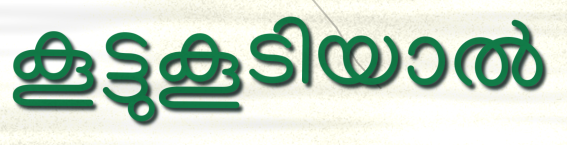
കൂട്ടുകൂടിയാൽ